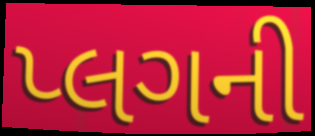
પ્લગની